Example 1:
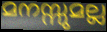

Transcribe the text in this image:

മനസ്സുമല്ല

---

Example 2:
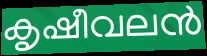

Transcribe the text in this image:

കൃഷീവലൻ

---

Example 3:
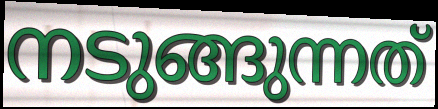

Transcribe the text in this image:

നടുങ്ങുന്നത്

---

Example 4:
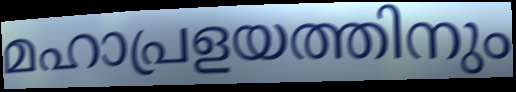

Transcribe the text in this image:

മഹാപ്രളയത്തിനും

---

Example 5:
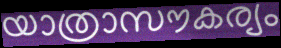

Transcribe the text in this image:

യാത്രാസൗകര്യം